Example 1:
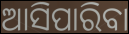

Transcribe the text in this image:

ଆସିପାରିବା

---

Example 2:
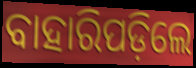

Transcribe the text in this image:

ବାହାରିପଡ଼ିଲେ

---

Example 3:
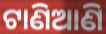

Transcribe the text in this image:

ଟାଣିଆଣି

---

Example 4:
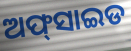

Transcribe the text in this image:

ଅଫ୍‍ସାଇଡ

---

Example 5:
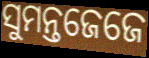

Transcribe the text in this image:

ସୁମନ୍ତଜେଜେ